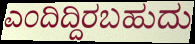
ಎಂದಿದ್ದಿರಬಹುದು